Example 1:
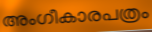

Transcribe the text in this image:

അംഗീകാരപത്രം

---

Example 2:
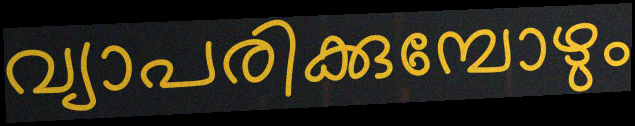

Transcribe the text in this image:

വ്യാപരിക്കുമ്പോഴും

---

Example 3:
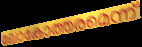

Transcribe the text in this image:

ലോകോത്തരമെന്ന്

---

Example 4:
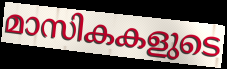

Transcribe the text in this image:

മാസികകളുടെ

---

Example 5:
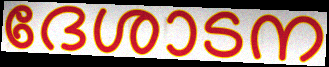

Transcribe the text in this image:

ദേശാടന